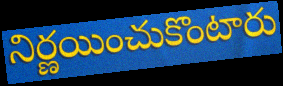
నిర్ణయించుకొంటారు